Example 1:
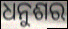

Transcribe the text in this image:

ଧନୁଶର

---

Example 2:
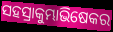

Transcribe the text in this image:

ସହସ୍ରାକୁମ୍ଭାଭିଷେକର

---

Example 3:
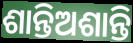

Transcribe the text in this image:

ଶାନ୍ତିଅଶାନ୍ତି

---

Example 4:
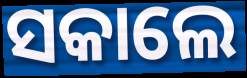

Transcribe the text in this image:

ସକାଲେ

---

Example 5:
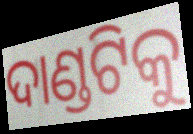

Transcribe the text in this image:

ଦାଣ୍ଡଟିକୁ